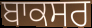
ਬਾਕਸਰ